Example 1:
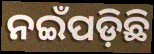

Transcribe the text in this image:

ନଇଁପଡ଼ିଛି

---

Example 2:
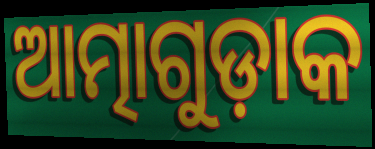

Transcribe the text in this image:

ଆତ୍ମାଗୁଡ଼ାକ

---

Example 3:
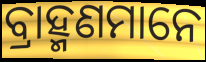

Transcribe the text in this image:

ବ୍ରାହ୍ମଣମାନେ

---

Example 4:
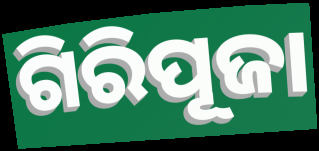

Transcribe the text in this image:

ଗିରିପୂଜା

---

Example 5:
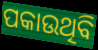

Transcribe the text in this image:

ପକାଉଥିବି